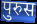
पुरुस